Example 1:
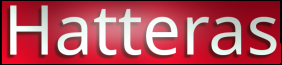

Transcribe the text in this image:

Hatteras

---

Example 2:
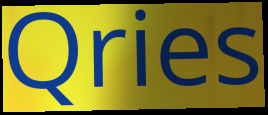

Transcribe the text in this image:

Qries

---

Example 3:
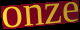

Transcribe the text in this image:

onze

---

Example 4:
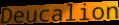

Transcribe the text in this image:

Deucalion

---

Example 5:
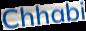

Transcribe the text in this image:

Chhabi